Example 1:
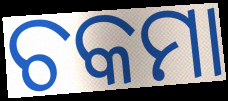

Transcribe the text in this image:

ଚକମା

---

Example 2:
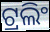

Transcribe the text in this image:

ଟ୍ରଲିଂ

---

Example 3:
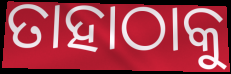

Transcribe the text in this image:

ତାହାଠାକୁ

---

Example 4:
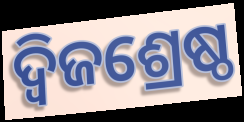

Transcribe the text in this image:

ଦ୍ୱିଜଶ୍ରେଷ୍ଠ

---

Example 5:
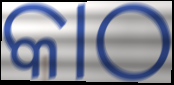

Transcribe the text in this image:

କାଠ